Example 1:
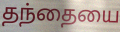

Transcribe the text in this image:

தந்தையை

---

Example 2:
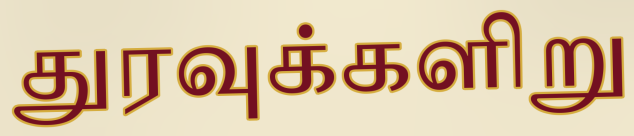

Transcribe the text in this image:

துரவுக்களிறு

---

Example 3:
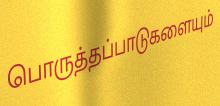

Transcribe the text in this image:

பொருத்தப்பாடுகளையும்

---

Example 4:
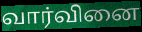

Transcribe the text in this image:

வார்வினை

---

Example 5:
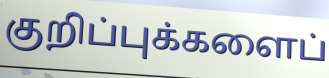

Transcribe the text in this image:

குறிப்புக்களைப்